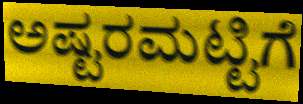
ಅಷ್ಟರಮಟ್ಟಿಗೆ